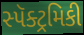
સ્પૅક્ટ્રમિકી